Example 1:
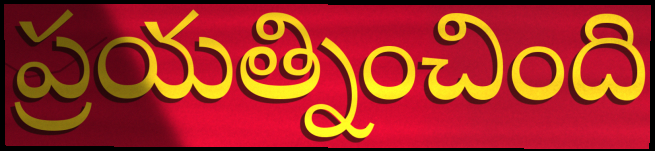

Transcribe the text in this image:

ప్రయత్నించింది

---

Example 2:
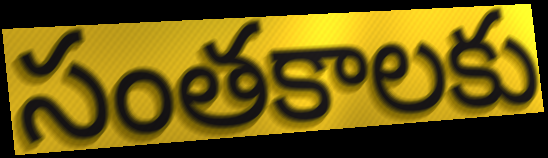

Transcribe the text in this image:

సంతకాలకు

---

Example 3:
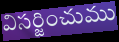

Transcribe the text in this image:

విసర్జించుము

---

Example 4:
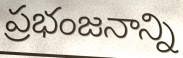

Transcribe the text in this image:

ప్రభంజనాన్ని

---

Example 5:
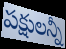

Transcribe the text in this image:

పక్షులన్నీ